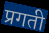
प्रगती